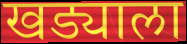
खड्याला